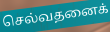
செல்வதனைக்